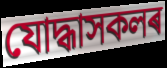
যোদ্ধাসকলৰ